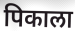
पिकाला